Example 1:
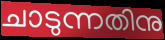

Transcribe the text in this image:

ചാടുന്നതിനു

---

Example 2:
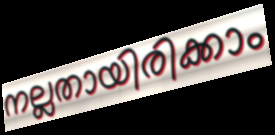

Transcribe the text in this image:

നല്ലതായിരിക്കാം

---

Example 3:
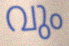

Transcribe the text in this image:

വും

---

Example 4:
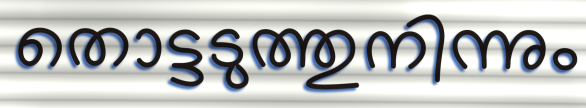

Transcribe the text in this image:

തൊട്ടടുത്തുനിന്നും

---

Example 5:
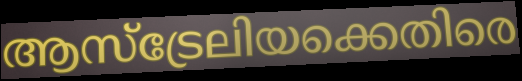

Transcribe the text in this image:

ആസ്ട്രേലിയക്കെതിരെ